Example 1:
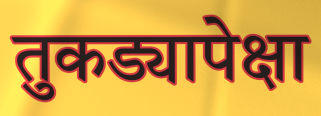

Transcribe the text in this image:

तुकड्यापेक्षा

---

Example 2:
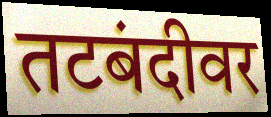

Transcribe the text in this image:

तटबंदीवर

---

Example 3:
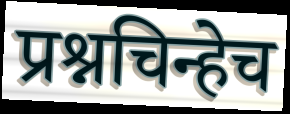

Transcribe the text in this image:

प्रश्नचिन्हेच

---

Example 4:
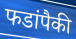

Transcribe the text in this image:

फडांपैकी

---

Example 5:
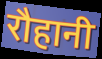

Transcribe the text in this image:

रौहानी